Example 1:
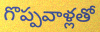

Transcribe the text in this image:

గొప్పవాళ్లతో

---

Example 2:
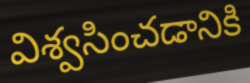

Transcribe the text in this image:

విశ్వసించడానికి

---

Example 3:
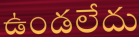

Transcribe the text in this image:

ఉండలేదు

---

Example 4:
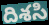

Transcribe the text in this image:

దిశసి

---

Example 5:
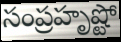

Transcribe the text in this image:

సంప్రహృష్టో